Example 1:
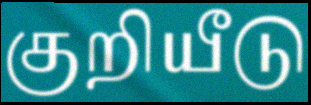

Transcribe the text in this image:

குறியீடு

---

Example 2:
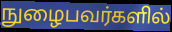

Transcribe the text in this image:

நுழைபவர்களில்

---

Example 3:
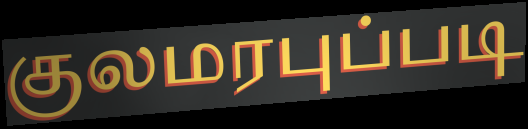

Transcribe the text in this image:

குலமரபுப்படி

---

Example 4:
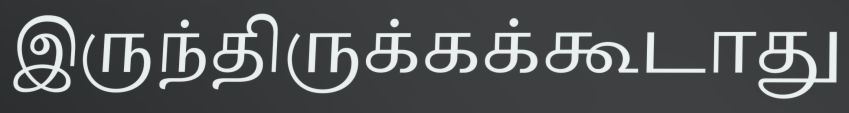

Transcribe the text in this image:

இருந்திருக்கக்கூடாது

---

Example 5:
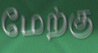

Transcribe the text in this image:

மேற்கு